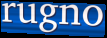
rugno